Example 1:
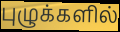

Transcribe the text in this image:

புழுக்களில்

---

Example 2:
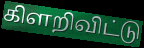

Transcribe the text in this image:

கிளறிவிட்டு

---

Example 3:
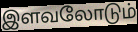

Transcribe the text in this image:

இளவலோடும்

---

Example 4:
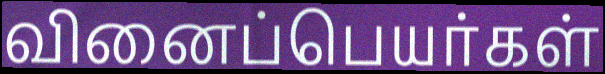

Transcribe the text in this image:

வினைப்பெயர்கள்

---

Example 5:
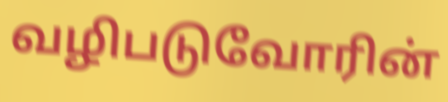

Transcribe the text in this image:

வழிபடுவோரின்